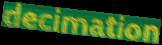
decimation